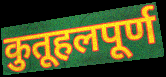
कुतूहलपूर्ण